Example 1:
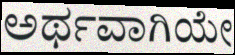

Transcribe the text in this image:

ಅರ್ಥವಾಗಿಯೇ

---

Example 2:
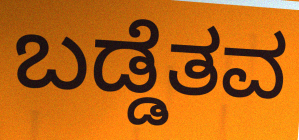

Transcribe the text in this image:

ಬಡ್ಡೆತವ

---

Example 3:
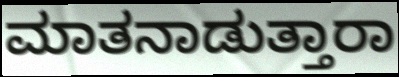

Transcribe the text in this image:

ಮಾತನಾಡುತ್ತಾರಾ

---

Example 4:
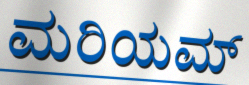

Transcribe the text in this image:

ಮರಿಯಮ್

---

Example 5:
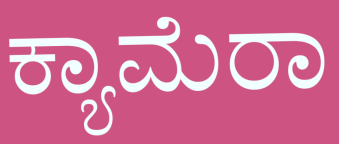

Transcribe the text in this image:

ಕ್ಯಾಮೆರಾ